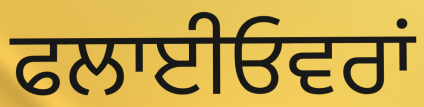
ਫਲਾਈਓਵਰਾਂ